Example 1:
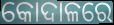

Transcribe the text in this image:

କୋଦାଳରେ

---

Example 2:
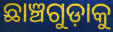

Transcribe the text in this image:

ଛାଞ୍ଚଗୁଡ଼ାକୁ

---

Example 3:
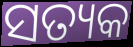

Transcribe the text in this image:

ସତ୍ୟକ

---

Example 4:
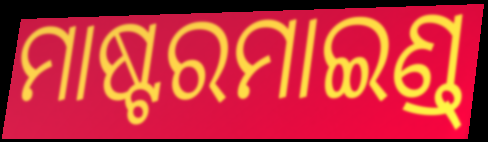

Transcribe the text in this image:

ମାଷ୍ଟରମାଇଣ୍ଡ୍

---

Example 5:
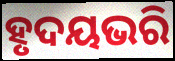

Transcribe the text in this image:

ହୃଦୟଭରି